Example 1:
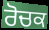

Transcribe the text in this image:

ਰੋਚਕ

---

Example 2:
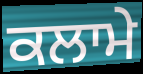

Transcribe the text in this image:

ਕਲਾਮੇ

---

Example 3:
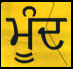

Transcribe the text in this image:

ਮੂੰਦ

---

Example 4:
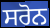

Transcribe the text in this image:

ਸਰੋਨ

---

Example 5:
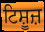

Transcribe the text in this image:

ਟਿਸ਼ੂਜ਼